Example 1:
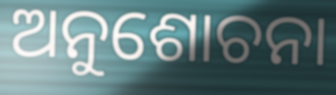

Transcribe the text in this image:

ଅନୁଶୋଚନା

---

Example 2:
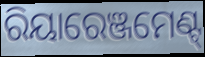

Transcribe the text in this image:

ରିୟାରେଞ୍ଜମେଣ୍ଟ୍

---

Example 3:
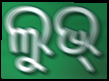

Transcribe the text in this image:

ଲୁଭ୍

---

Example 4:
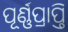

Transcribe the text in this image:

ପୂର୍ଣ୍ଣପ୍ରାପ୍ତି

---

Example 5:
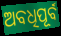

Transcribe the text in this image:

ଅବଧିପୂର୍ବ